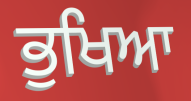
ਭੁਖਿਆ